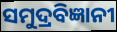
ସମୁଦ୍ରବିଜ୍ଞାନୀ